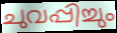
ചുവപ്പിച്ചും